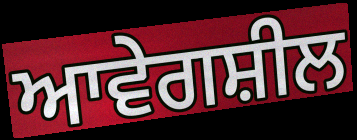
ਆਵੇਗਸ਼ੀਲ